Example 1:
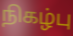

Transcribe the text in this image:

நிகழ்பு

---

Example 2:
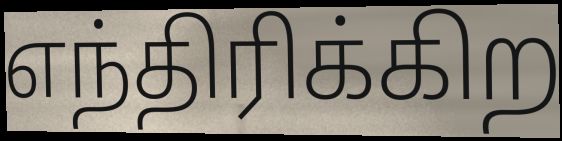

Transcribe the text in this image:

எந்திரிக்கிற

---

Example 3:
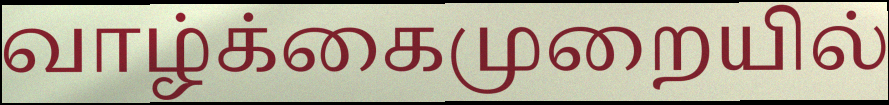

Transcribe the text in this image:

வாழ்க்கைமுறையில்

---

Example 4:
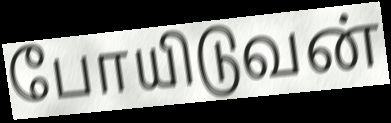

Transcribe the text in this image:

போயிடுவன்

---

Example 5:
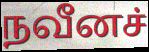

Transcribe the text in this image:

நவீனச்